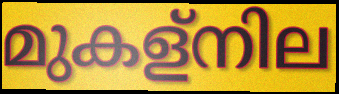
മുകള്നില